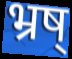
भ्रष्